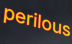
perilous